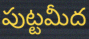
పుట్టమీద